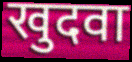
खुदवा